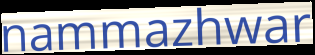
nammazhwar